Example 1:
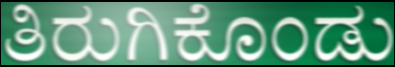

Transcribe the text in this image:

ತಿರುಗಿಕೊಂಡು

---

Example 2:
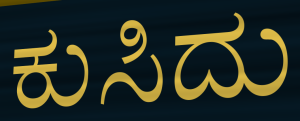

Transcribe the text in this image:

ಕುಸಿದು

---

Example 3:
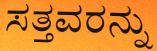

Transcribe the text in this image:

ಸತ್ತವರನ್ನು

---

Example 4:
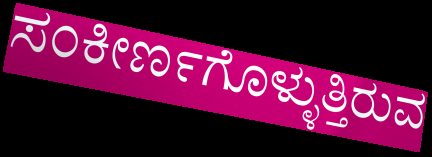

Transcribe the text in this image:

ಸಂಕೀರ್ಣಗೊಳ್ಳುತ್ತಿರುವ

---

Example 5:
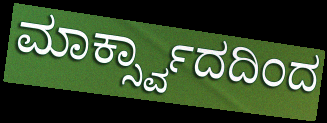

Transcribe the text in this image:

ಮಾರ್ಕ್ಸ್ವಾದದಿಂದ